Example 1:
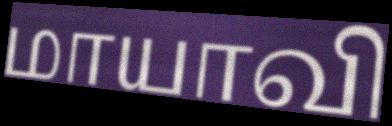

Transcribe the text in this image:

மாயாவி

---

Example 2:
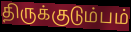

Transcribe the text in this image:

திருக்குடும்பம்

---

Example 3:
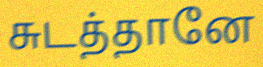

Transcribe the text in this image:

சுடத்தானே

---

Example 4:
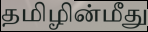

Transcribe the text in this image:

தமிழின்மீது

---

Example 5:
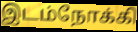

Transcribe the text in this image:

இடம்நோக்கி